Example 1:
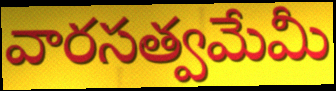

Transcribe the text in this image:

వారసత్వమేమీ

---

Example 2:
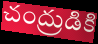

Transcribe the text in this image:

చంద్రుడికి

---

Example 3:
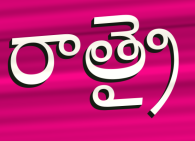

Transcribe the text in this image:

రాత్రై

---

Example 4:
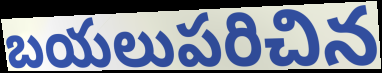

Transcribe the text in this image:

బయలుపరిచిన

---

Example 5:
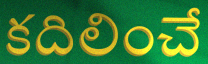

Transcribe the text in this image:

కదిలించే